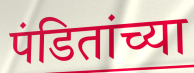
पंडितांच्या